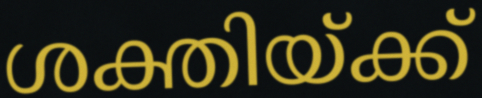
ശക്തിയ്ക്ക്